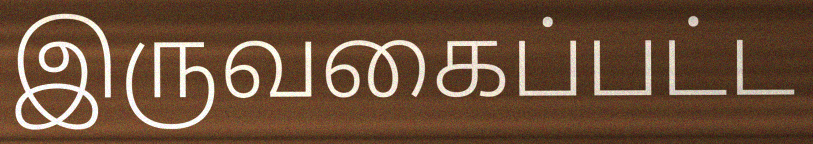
இருவகைப்பட்ட